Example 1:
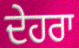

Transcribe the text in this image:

ਦੇਹਰਾ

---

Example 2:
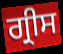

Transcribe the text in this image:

ਗ੍ਰੀਸ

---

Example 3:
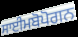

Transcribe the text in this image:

ਸਾਈਮਬੋਪੋਗਨ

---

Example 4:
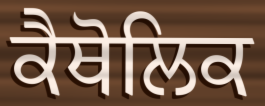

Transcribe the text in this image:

ਕੈਥੋਲਿਕ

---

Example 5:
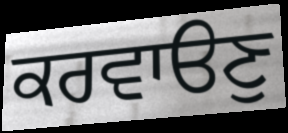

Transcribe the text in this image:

ਕਰਵਾੳਣੁ